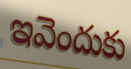
ఇవెందుకు